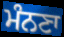
ਮੰਨਣਾ